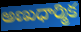
అణుధార్మిక